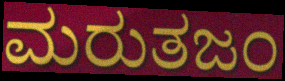
ಮರುತಜಂ